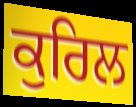
ਕੁਰਿਲ